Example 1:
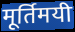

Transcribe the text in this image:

मूर्तिमयी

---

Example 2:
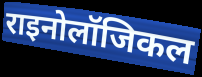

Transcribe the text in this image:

राइनोलॉजिकल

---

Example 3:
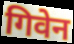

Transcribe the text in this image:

गिवेन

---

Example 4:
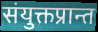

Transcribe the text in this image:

संयुक्तप्रान्त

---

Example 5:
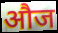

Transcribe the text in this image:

औज